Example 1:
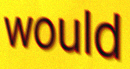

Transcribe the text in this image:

would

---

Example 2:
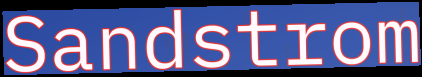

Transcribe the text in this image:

Sandstrom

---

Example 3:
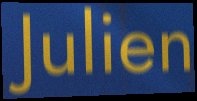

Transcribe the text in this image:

Julien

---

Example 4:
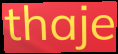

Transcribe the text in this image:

thaje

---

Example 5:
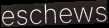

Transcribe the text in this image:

eschews